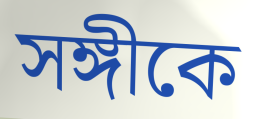
সঙ্গীকে